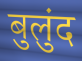
बुलुंद